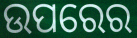
ଉପରେର